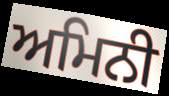
ਅਮਿਨੀ